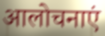
आलोचनाएं